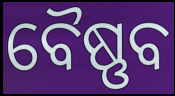
ବୈଷ୍ଣବ